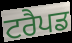
ਟਰੈਪਡ